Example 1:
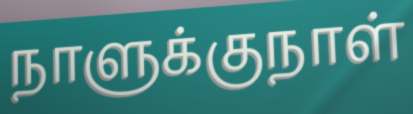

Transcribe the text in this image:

நாளுக்குநாள்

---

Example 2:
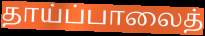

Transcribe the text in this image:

தாய்ப்பாலைத்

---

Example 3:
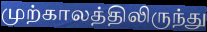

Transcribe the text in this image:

முற்காலத்திலிருந்து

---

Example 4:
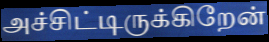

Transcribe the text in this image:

அச்சிட்டிருக்கிறேன்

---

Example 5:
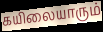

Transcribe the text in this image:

கயிலையாரும்